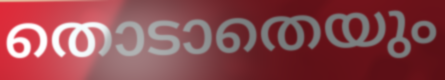
തൊടാതെയും